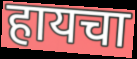
हायचा